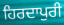
ਹਿਰਦਾਪੁਰੀ